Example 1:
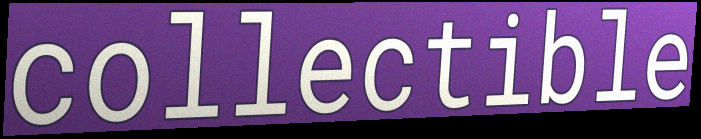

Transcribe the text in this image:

collectible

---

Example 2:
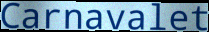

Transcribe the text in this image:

Carnavalet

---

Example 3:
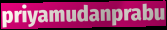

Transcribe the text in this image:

priyamudanprabu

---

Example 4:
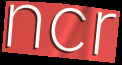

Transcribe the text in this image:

ncr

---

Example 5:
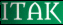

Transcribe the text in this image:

ITAK